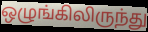
ஒழுங்கிலிருந்து